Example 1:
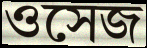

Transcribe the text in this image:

ওসেজ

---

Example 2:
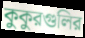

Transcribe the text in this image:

কুকুরগুলির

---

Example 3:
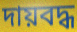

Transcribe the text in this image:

দায়বদ্ধ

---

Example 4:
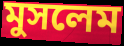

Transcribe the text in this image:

মুসলেম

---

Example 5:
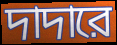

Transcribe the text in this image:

দাদারে